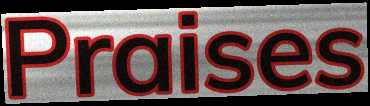
Praises